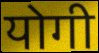
योगी